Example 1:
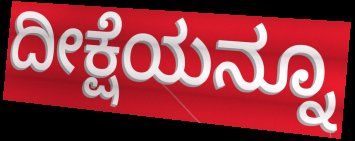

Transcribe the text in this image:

ದೀಕ್ಷೆಯನ್ನೂ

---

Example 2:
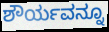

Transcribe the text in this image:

ಶೌರ್ಯವನ್ನೂ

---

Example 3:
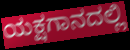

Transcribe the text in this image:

ಯಕ್ಷಗಾನದಲ್ಲಿ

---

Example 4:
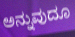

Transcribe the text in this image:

ಅನ್ನುವುದೂ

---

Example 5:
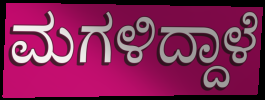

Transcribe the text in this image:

ಮಗಳಿದ್ದಾಳೆ